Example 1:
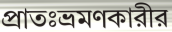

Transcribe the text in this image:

প্রাতঃভ্রমণকারীর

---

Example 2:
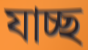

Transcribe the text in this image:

যাচ্ছ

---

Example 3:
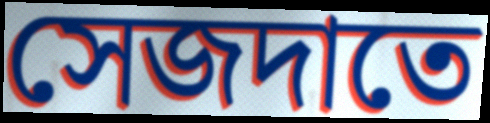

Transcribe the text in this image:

সেজদাতে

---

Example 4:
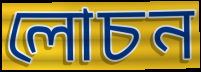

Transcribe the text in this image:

লোচন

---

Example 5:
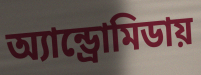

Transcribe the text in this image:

অ্যান্ড্রোমিডায়